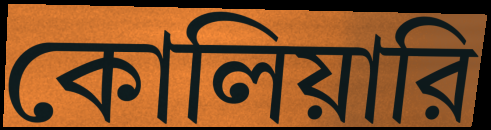
কোলিয়ারি